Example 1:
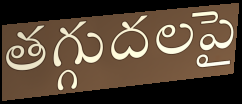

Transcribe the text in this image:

తగ్గుదలపై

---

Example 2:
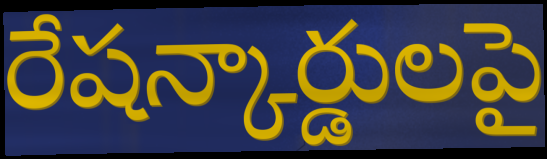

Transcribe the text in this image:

రేషన్కార్డులపై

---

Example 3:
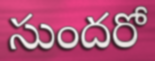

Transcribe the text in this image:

సుందరో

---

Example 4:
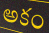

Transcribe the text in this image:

అకం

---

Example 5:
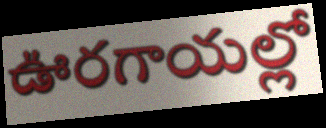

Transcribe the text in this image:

ఊరగాయల్లో